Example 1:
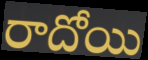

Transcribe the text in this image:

రాదోయి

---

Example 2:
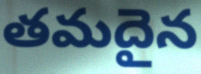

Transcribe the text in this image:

తమదైన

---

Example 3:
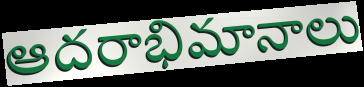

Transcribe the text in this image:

ఆదరాభిమానాలు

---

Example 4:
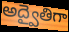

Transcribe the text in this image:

అద్వైతిగా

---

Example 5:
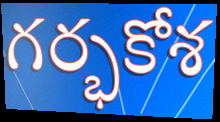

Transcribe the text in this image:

గర్భకోశ